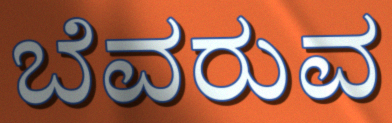
ಬೆವರುವ